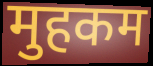
मुहकम